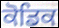
ਕੋਡਿਕ